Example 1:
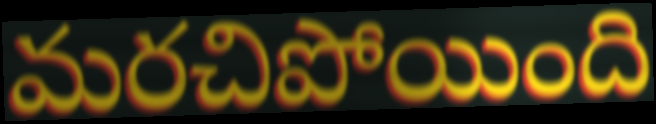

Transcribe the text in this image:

మరచిపోయింది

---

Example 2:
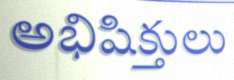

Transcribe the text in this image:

అభిషిక్తులు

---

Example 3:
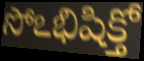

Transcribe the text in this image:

సోఽభిషిక్తో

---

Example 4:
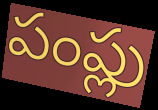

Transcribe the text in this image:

పంప్లు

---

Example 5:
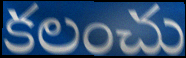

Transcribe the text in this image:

కలంచు